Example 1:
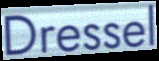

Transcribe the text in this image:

Dressel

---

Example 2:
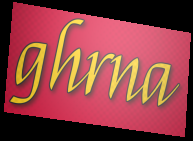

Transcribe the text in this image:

ghrna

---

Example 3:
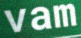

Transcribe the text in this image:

vam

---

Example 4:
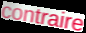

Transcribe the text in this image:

contraire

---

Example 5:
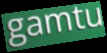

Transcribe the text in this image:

gamtu